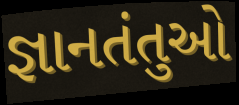
જ્ઞાનતંતુઓ